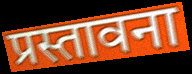
प्रस्तावना